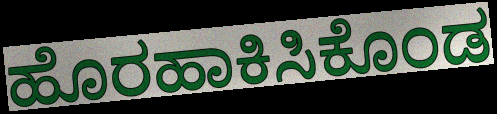
ಹೊರಹಾಕಿಸಿಕೊಂಡ